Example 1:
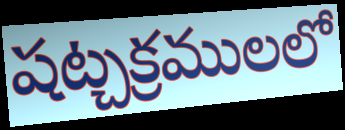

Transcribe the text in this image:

షట్చక్రములలో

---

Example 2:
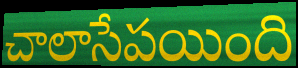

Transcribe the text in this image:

చాలాసేపయింది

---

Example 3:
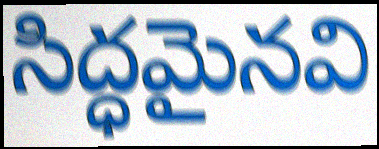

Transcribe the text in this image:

సిద్ధమైనవి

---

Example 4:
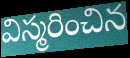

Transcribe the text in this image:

విస్మరించిన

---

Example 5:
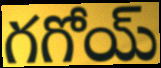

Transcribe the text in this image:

గగోయ్